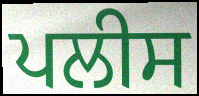
ਪਲੀਸ